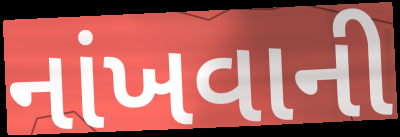
નાંખવાની